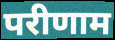
परीणाम